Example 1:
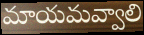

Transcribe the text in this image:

మాయమవ్వాలి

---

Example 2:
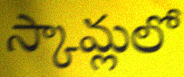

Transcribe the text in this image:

స్కామ్లలో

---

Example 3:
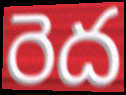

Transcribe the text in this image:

రెద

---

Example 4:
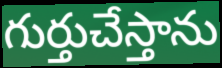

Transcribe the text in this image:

గుర్తుచేస్తాను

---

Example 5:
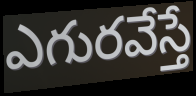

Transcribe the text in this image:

ఎగురవేస్తే